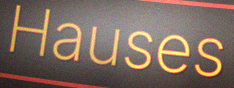
Hauses